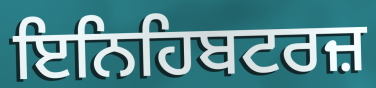
ਇਨਿਹਿਬਟਰਜ਼